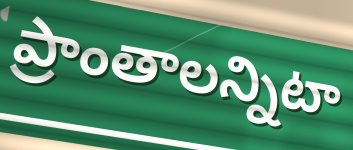
ప్రాంతాలన్నిటా